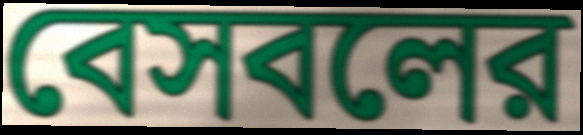
বেসবলের